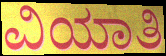
ವಿಯಾತಿ